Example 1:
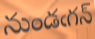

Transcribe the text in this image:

నుండఁగన్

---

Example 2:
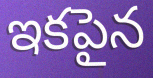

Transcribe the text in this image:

ఇకపైన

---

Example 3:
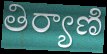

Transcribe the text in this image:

తిర్యాణి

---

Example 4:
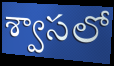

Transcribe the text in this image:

శ్వాసలో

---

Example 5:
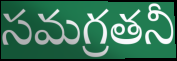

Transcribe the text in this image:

సమగ్రతనీ